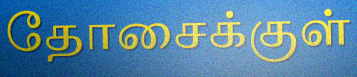
தோசைக்குள்